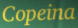
Copeina